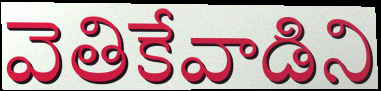
వెతికేవాడిని